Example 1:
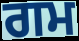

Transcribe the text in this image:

ਗਮ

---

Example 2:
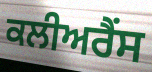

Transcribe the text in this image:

ਕਲੀਅਰੈਂਸ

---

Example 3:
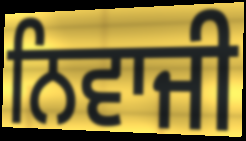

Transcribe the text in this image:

ਨਿਵਾਜੀ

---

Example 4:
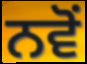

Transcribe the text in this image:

ਨਵੋਂ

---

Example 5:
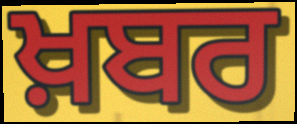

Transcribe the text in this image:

ਖ਼ਬਰ